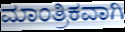
ಮಾಂತ್ರಿಕವಾಗಿ